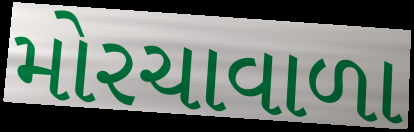
મોરચાવાળા